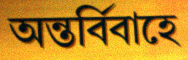
অন্তর্বিবাহে